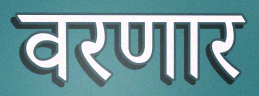
वरणार